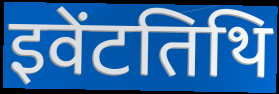
इवेंटतिथि